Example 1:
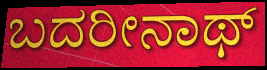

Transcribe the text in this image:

ಬದರೀನಾಥ್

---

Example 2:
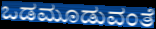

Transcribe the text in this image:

ಒಡಮೂಡುವಂತೆ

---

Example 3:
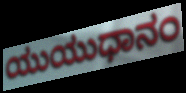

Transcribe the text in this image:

ಯುಯುಧಾನಂ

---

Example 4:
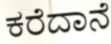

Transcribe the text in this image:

ಕರೆದಾನೆ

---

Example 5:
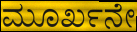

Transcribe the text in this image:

ಮೂರ್ಖನೇ